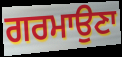
ਗਰਮਾਉਣਾ